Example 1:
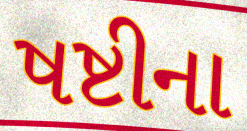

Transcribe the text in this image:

ષષ્ટીના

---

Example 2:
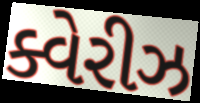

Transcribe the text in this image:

ક્વેરીઝ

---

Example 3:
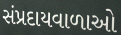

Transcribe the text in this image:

સંપ્રદાયવાળાઓ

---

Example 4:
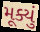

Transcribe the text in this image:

મૂક્યું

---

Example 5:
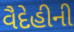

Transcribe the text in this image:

વૈદેહીની